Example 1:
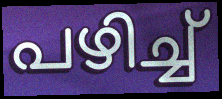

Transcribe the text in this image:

പഴിച്ച്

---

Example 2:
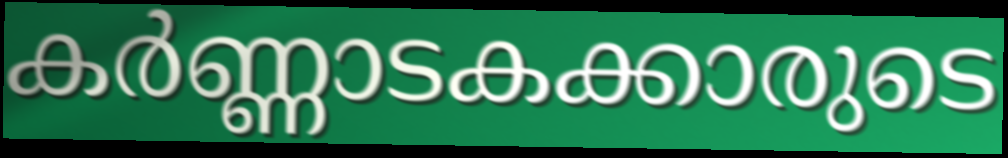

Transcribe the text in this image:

കർണ്ണാടകക്കാരുടെ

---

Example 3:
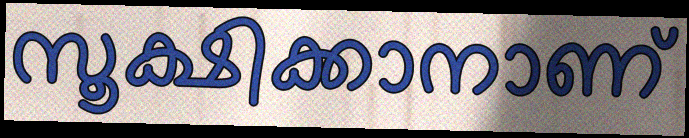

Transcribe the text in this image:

സൂക്ഷിക്കാനാണ്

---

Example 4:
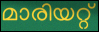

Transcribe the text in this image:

മാരിയറ്റ്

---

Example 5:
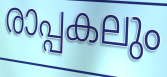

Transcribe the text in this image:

രാപ്പകലും